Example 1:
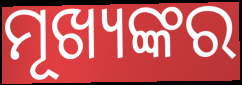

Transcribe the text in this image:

ମୂଖ୍ୟଙ୍କର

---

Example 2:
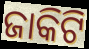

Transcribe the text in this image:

ଜାକିଟି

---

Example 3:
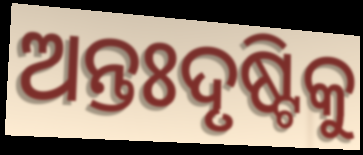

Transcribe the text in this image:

ଅନ୍ତଃଦୃଷ୍ଟିକୁ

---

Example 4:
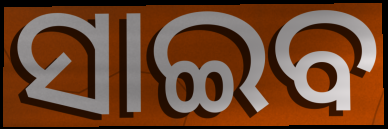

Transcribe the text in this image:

ସାଇବ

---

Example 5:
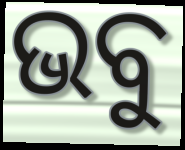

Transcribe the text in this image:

ଭବୁ